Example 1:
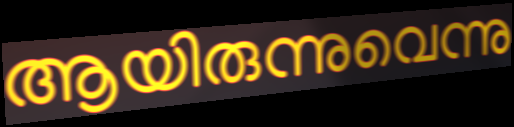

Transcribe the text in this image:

ആയിരുന്നുവെന്നു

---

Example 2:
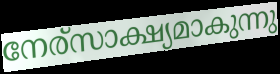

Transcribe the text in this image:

നേര്സാക്ഷ്യമാകുന്നു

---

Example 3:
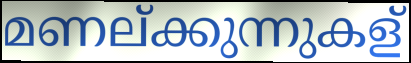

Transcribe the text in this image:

മണല്ക്കുന്നുകള്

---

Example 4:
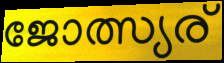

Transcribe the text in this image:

ജോത്സ്യര്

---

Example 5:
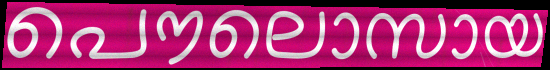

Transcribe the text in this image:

പൌലൊസായ